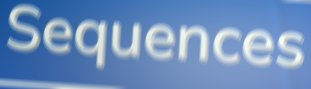
Sequences